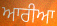
ਆਰੀਆ